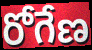
రోగేణ